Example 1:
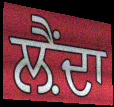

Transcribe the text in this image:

ਲ਼ੈਂਦਾ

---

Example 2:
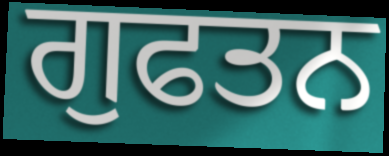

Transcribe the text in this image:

ਗੁਫਤਨ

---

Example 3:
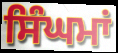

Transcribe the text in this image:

ਸਿੰਘਮਾਂ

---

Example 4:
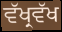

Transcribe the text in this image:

ਵੱਖ੍ਰਵੱਖ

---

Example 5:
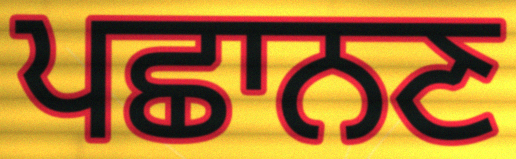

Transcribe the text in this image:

ਪਛਾਨਣ